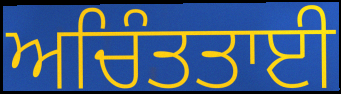
ਅਚਿੰਤਤਾਈ